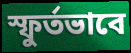
স্ফুর্তভাবে